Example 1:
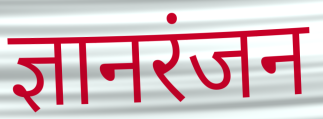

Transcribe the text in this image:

ज्ञानरंजन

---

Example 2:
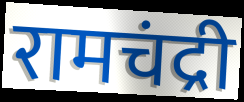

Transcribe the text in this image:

रामचंद्री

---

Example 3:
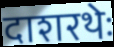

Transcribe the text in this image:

दाशरथेः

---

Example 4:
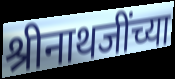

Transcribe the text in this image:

श्रीनाथजींच्या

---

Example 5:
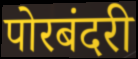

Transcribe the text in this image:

पोरबंदरी